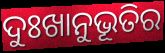
ଦୁଃଖାନୁଭୂତିର